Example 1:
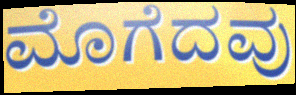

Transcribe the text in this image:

ಮೊಗೆದವು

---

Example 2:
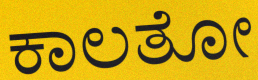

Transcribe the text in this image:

ಕಾಲತೋ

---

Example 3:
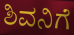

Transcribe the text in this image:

ಶಿವನಿಗೆ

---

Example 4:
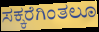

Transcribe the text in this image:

ಸಕ್ಕರೆಗಿಂತಲೂ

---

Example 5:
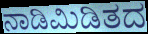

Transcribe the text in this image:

ನಾಡಿಮಿಡಿತದ